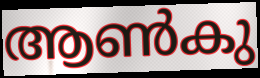
ആൺകു